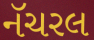
નૅચરલ